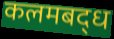
कलमबद्ध